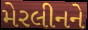
મેરલીનને